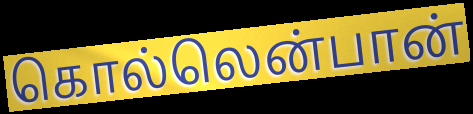
கொல்லென்பான்